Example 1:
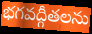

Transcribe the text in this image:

భగవద్గీతలను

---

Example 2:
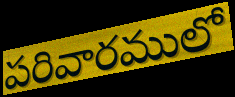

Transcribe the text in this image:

పరివారములో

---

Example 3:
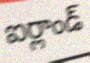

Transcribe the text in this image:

ఐర్లాండ్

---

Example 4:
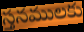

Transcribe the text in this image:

స్తనములకు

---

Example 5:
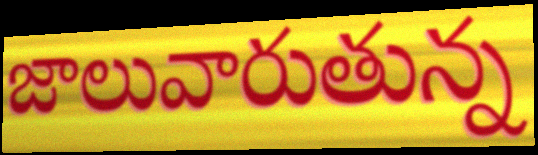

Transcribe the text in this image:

జాలువారుతున్న